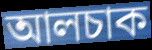
আলচাক